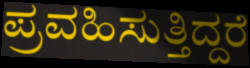
ಪ್ರವಹಿಸುತ್ತಿದ್ದರೆ